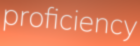
proficiency